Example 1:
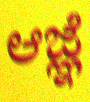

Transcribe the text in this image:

ಆಜ್ಞೆ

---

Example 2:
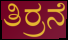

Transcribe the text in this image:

ತಿರ್ರನೆ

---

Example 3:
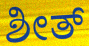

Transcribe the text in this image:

ಶೀತ್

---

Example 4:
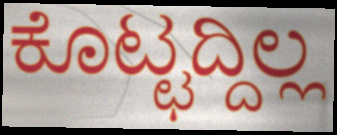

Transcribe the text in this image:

ಕೊಟ್ಟದ್ದಿಲ್ಲ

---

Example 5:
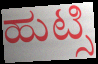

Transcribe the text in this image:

ಹುಟ್ಸಿ